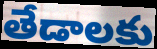
తేడాలకు